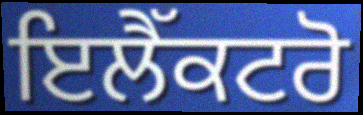
ਇਲੈੱਕਟਰੋ